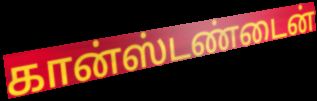
கான்ஸ்டண்டைன்